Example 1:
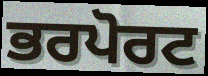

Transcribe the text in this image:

ਭਰਪੋਰਟ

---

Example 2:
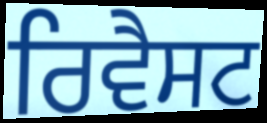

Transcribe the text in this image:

ਰਿਵੈਸਟ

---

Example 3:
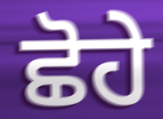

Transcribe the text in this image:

ਛੋਹੇ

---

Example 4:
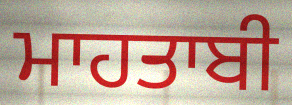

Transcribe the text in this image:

ਮਾਹਤਾਬੀ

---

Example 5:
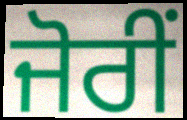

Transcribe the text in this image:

ਜੋਰੀਂ